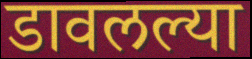
डावलल्या